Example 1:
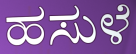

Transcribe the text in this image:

ಹಸುಳೆ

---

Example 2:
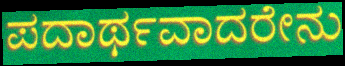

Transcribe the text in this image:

ಪದಾರ್ಥವಾದರೇನು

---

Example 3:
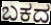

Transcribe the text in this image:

ಬಕದ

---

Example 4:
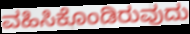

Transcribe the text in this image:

ವಹಿಸಿಕೊಂಡಿರುವುದು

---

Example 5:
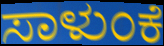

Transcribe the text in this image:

ಸಾಳುಂಕೆ